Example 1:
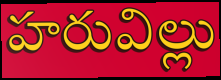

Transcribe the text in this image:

హరువిల్లు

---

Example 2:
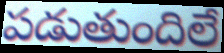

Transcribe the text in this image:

పడుతుందిలే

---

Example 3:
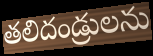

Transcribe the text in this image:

తలిదండ్రులను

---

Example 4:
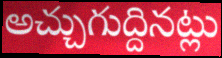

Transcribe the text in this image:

అచ్చుగుద్దినట్లు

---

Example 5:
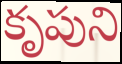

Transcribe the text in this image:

కృపుని